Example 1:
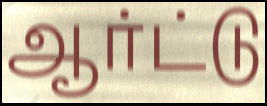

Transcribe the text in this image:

ஆர்ட்டு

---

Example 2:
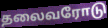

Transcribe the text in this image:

தலைவரோடு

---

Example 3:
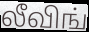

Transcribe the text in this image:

லீவிங்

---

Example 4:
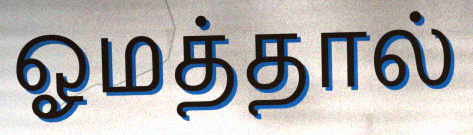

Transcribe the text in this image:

ஓமத்தால்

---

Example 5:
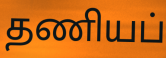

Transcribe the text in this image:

தணியப்